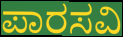
ಪಾರಸವಿ